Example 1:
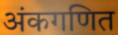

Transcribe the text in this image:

अंकगणित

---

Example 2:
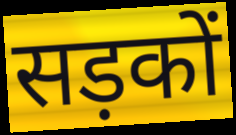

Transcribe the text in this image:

सड़कों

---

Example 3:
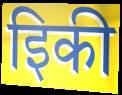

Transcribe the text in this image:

इिकी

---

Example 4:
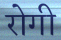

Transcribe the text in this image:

रोगी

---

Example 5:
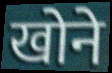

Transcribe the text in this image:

खोने